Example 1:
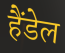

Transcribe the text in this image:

हैंडेल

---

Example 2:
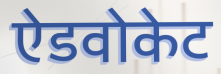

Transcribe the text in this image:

ऐडवोकेट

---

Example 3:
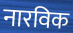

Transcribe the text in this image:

नारविक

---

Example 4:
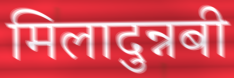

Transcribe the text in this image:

मिलादुन्नबी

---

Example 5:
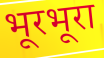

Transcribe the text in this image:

भूरभूरा